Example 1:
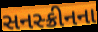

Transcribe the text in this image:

સનસ્ક્રીનના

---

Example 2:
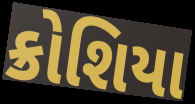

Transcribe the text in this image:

ક્રોશિયા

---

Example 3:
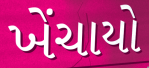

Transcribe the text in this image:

ખેંચાયો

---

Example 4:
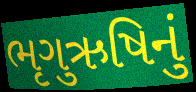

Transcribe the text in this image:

ભૃગુઋષિનું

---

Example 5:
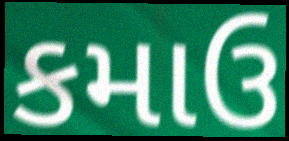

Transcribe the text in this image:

કમાઉ